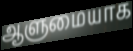
ஆளுமையாக